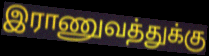
இராணுவத்துக்கு